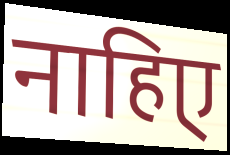
नाहिए